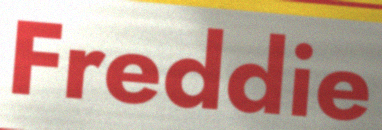
Freddie